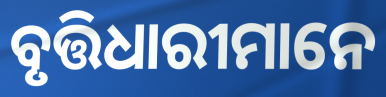
ବୃତ୍ତିଧାରୀମାନେ